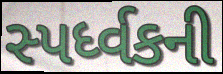
સ્પર્ધ્વકની